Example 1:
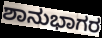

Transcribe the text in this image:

ಶಾನುಭಾಗರ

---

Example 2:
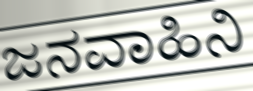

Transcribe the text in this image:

ಜನವಾಹಿನಿ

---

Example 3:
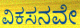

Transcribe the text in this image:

ವಿಕಸನವೇ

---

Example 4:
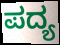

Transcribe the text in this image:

ಪದ್ಯ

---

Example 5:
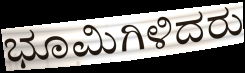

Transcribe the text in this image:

ಭೂಮಿಗಿಳಿದರು